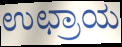
ಉಛ್ರಾಯ